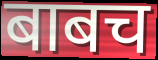
बाबच